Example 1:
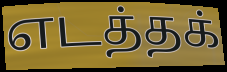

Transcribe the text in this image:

எடத்தக்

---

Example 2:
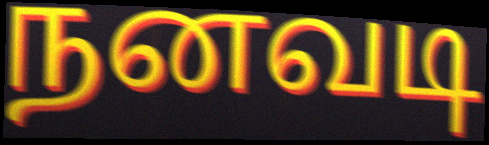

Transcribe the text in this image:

நனவடி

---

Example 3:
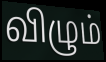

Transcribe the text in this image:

விழும்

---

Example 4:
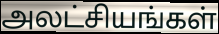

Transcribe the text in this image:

அலட்சியங்கள்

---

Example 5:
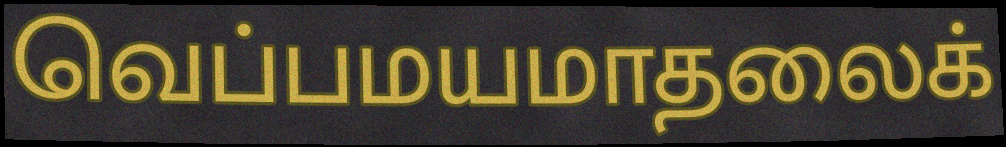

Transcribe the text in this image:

வெப்பமயமாதலைக்